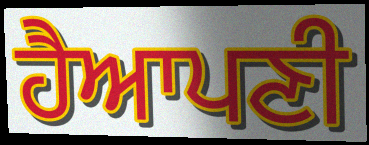
ਹੈਆਪਣੀ